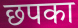
छपका